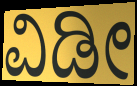
ವಿಡೀ